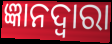
ଜ୍ଞାନଦ୍ଵାରା